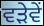
ਵੜੇਵੇਂ